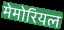
मेमोरियल